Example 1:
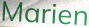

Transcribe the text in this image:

Marien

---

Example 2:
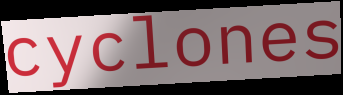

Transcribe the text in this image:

cyclones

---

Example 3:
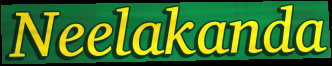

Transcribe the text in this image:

Neelakanda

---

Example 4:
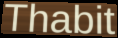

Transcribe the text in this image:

Thabit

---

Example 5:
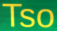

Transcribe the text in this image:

Tso